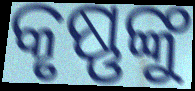
କୃଷ୍ଣଙ୍କୁ